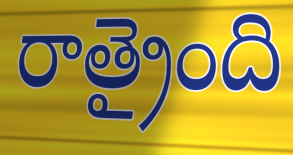
రాత్రైంది